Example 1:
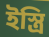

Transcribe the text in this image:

ইস্ত্রি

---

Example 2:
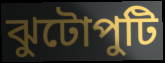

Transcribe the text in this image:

ঝুটোপুটি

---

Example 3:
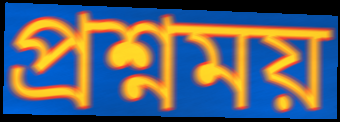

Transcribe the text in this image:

প্রশ্নময়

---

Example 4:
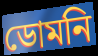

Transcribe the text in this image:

ডোমনি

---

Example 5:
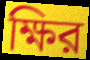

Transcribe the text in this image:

ক্ষির